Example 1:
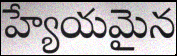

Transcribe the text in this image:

హ్యేయమైన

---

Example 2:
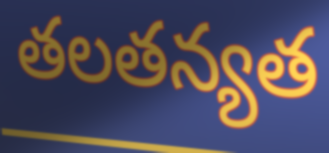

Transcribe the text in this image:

తలతన్యత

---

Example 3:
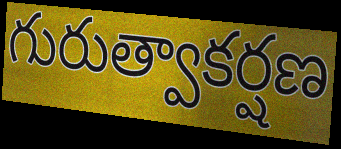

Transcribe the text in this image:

గురుత్వాకర్షణ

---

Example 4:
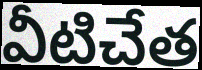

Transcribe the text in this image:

వీటిచేత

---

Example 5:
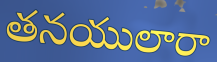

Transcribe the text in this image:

తనయులారా